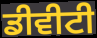
ਡੀਵੀਟੀ